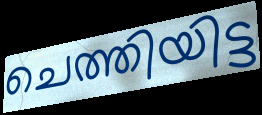
ചെത്തിയിട്ട